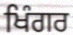
ਖਿੰਗਰ